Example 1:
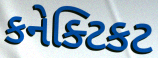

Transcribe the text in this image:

કનેક્ટિકટ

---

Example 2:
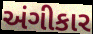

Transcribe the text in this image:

અંગીકાર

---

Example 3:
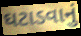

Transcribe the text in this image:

ઘટાડવાનું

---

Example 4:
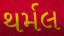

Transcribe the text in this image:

થર્મલ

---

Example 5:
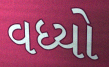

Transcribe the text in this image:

વધ્યો